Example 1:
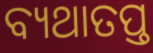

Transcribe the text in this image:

ବ୍ୟଥାତପ୍ତ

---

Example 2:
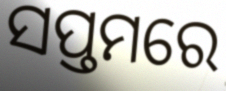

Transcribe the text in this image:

ସପ୍ତମରେ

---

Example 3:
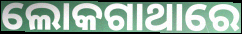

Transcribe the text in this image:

ଲୋକଗାଥାରେ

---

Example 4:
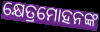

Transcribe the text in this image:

କ୍ଷେତ୍ରମୋହନଙ୍କ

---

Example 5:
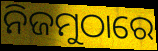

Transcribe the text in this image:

ନିଜମୁଠାରେ